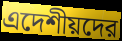
এদেশীয়দের